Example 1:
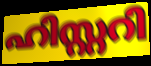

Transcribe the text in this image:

ഹിസ്റ്ററി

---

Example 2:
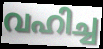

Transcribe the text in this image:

വഹിച്ച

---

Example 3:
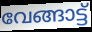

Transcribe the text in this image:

വേങ്ങാട്ട്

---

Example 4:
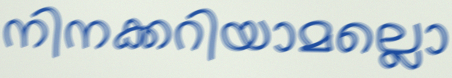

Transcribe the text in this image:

നിനക്കറിയാമല്ലൊ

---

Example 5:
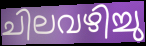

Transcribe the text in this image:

ചിലവഴിച്ചു